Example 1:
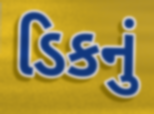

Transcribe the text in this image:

ડિકનું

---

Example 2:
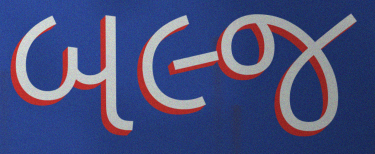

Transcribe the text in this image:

બલ્જ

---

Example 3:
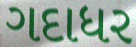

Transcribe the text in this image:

ગદાધર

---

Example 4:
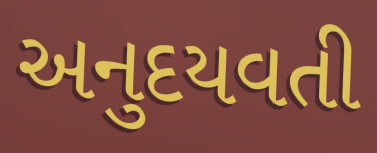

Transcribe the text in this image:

અનુદયવતી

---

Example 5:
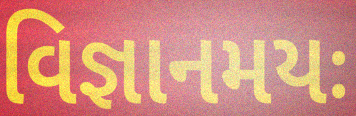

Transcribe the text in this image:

વિજ્ઞાનમયઃ